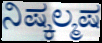
ನಿಷ್ಕಲ್ಮಷ